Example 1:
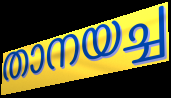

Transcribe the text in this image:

താനയച്ച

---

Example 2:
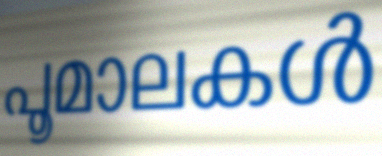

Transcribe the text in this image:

പൂമാലകൾ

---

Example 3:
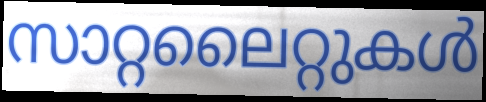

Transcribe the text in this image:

സാറ്റലൈറ്റുകൾ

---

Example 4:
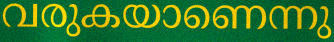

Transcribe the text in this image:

വരുകയാണെന്നു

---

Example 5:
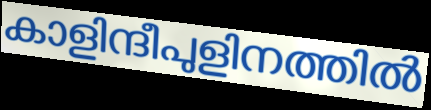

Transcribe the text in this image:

കാളിന്ദീപുളിനത്തിൽ